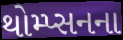
થોમ્પ્સનના